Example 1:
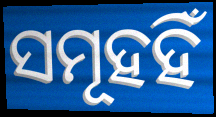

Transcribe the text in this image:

ସମୂହହିଁ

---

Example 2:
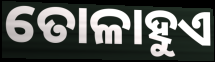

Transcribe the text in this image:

ତୋଳାହୁଏ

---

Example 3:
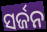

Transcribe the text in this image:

ସର୍ଜନ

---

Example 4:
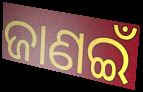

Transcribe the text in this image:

ଜାଣଇଁ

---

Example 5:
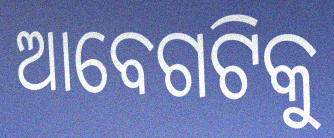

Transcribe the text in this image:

ଆବେଗଟିକୁ